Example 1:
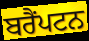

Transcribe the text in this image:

ਬਰੈੰਪਟਨ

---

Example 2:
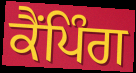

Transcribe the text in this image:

ਕੈਂਪਿੰਗ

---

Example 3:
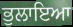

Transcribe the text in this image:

ਭੁਲਾਇਆ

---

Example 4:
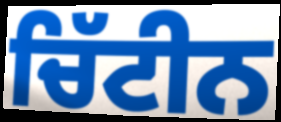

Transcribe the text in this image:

ਚਿੱਟੀਨ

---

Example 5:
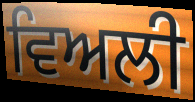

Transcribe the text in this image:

ਵਿਅਲੀ